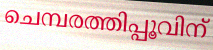
ചെമ്പരത്തിപ്പൂവിന്